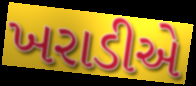
ખરાડીએ